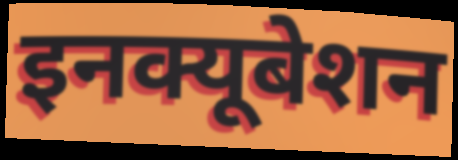
इनक्यूबेशन